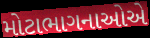
મોટાભાગનાઓએ